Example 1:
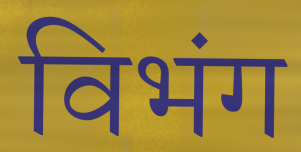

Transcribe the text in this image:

विभंग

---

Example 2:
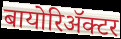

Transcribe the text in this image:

बायोरिॲक्टर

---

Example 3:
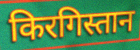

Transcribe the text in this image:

किरगिस्तान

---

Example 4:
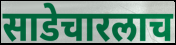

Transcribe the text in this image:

साडेचारलाच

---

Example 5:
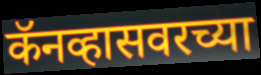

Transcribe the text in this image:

कॅनव्हासवरच्या